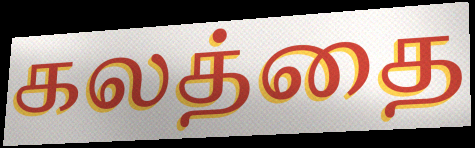
கலத்தை